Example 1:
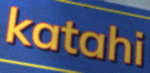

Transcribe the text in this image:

katahi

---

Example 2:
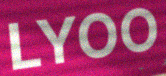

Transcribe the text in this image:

LYOO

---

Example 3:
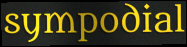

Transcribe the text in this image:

sympodial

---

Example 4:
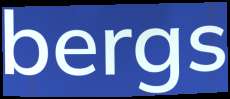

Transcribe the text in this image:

bergs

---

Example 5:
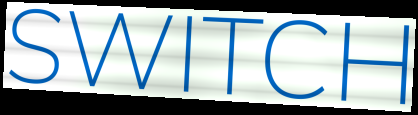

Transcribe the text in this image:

SWITCH